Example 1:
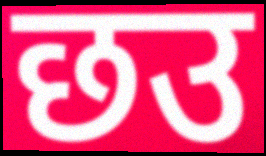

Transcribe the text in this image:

छउ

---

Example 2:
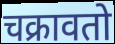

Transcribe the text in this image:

चक्रावतो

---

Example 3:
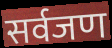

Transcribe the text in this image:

सर्वजण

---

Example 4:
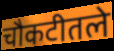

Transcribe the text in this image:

चौकटीतले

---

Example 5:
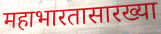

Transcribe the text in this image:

महाभारतासारख्या